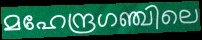
മഹേന്ദ്രഗഞ്ചിലെ